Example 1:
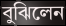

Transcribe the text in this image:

বুঝিলেন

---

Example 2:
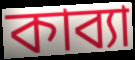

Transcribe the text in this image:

কাব্যা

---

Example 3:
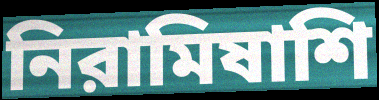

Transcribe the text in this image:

নিরামিষাশি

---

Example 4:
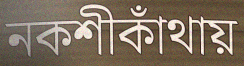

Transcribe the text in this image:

নকশীকাঁথায়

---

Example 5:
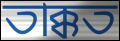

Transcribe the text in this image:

তাক্কত